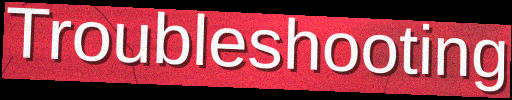
Troubleshooting